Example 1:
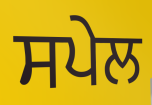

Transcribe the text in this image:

ਸਪੇਲ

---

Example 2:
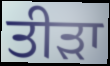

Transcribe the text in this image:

ਤੀੜਾ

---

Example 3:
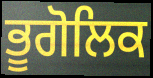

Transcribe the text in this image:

ਭੂਗੋਲਿਕ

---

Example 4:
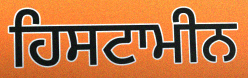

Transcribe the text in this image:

ਹਿਸਟਾਮੀਨ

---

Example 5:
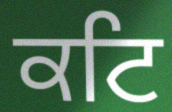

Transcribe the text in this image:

ਕਟਿ